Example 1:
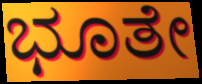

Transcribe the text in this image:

ಭೂತೇ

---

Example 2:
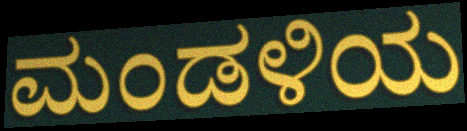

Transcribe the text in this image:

ಮಂಡಳಿಯ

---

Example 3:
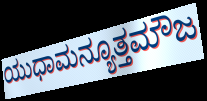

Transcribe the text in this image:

ಯುಧಾಮನ್ಯೂತ್ತಮೌಜ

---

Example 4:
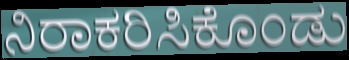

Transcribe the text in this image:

ನಿರಾಕರಿಸಿಕೊಂಡು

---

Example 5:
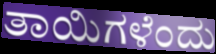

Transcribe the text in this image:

ತಾಯಿಗಳೆಂದು